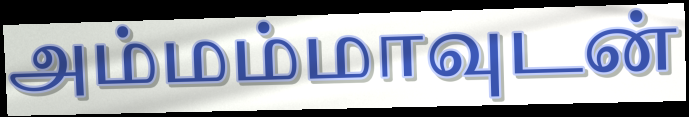
அம்மம்மாவுடன்